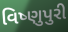
વિષ્ણુપુરી